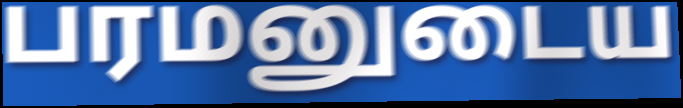
பரமனுடைய